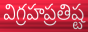
విగ్రహప్రతిష్ట